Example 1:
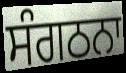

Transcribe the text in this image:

ਸੰਗਠਨਾ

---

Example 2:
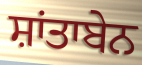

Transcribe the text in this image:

ਸ਼ਾਂਤਾਬੇਨ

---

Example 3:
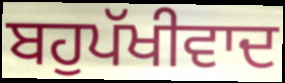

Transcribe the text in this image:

ਬਹੁਪੱਖੀਵਾਦ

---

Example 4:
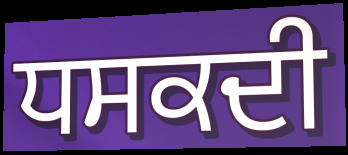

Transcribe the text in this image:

ਧਸਕਦੀ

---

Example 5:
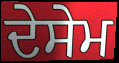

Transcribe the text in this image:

ਦੇਸੇਮ